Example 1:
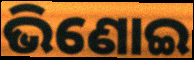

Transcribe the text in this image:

ଭିଣୋଇ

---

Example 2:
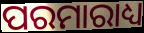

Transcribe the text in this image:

ପରମାରାଧ୍ୟ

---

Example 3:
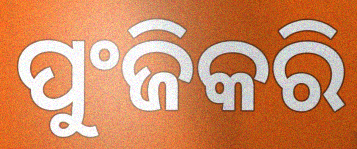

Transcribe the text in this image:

ପୁଂଜିକରି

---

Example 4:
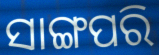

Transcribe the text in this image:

ସାଙ୍ଗପରି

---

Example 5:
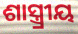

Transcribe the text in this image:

ଶାସ୍ତ୍ର୍ରୀୟ